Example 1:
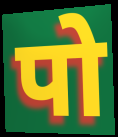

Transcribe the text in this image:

पो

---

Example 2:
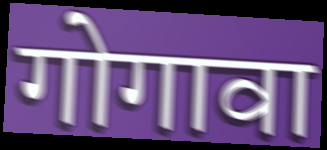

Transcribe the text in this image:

गोगावा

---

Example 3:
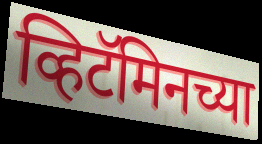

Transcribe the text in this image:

व्हिटॅमिनच्या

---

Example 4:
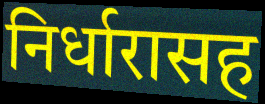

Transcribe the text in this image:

निर्धारासह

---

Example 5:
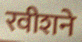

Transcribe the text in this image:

रवीशने